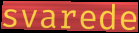
svarede